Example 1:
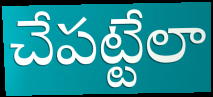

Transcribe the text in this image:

చేపట్టేలా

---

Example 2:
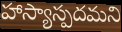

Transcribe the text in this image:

హాస్యాస్పదమని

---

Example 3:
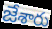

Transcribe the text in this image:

జేశారు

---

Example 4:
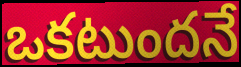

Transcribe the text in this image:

ఒకటుందనే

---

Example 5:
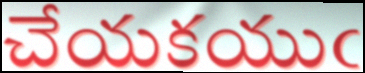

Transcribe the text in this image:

చేయకయుఁ